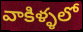
వాకిళ్ళలో